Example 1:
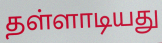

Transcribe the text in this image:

தள்ளாடியது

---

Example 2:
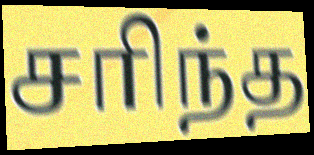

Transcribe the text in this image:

சரிந்த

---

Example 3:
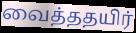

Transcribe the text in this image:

வைத்ததயிர்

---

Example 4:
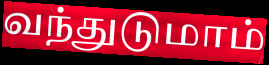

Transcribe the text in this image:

வந்துடுமாம்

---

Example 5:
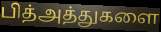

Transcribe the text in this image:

பித்அத்துகளை